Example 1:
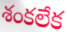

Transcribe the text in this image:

శంకలేక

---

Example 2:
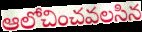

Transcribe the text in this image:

ఆలోచించవలసిన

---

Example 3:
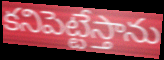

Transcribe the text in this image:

కనిపెట్టేస్తాను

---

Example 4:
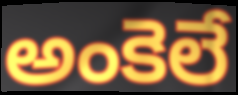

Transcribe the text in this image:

అంకెలే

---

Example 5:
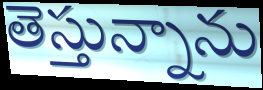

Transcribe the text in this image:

తెస్తున్నాను